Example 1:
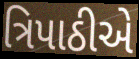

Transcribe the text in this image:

ત્રિપાઠીએ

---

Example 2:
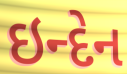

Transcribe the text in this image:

ઇન્દેન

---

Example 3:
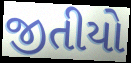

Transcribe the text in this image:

જીતીયો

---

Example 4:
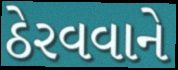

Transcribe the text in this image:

ઠેરવવાને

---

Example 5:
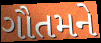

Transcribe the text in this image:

ગૌતમને